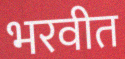
भरवीत